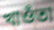
খাওঁতা